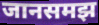
जानसमझ